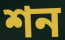
শন